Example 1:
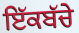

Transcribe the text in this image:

ਇੱਕਬੱਚੇ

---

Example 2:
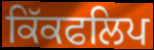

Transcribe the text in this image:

ਕਿੱਕਫਲਿਪ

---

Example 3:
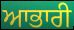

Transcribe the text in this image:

ਆਭਾਰੀ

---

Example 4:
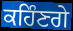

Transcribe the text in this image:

ਕਹਿੰਣਗੇ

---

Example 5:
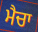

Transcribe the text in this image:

ਮੈਚਾ